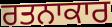
ਰਤਨਾਕਾਰ